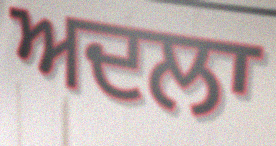
ਅਦਲਾ